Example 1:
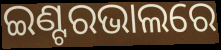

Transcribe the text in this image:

ଇଣ୍ଟରଭାଲରେ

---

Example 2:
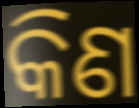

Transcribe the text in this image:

କିଣ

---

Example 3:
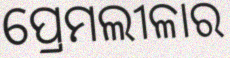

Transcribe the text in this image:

ପ୍ରେମଲୀଳାର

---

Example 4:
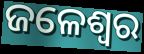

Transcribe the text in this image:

ଜଳେଶ୍ବର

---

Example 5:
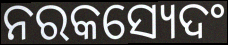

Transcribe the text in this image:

ନରକସ୍ୟେଦଂ